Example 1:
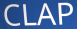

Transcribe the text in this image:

CLAP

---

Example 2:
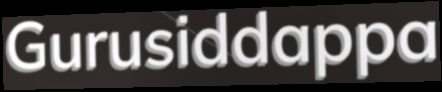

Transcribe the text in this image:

Gurusiddappa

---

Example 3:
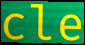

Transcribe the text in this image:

cle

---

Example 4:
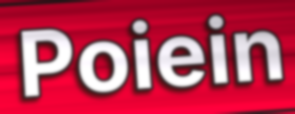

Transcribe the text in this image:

Poiein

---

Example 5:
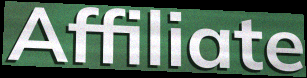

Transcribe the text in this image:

Affiliate